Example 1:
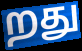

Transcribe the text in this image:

றது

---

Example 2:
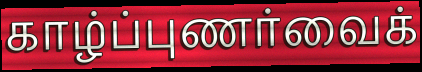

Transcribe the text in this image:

காழ்ப்புணர்வைக்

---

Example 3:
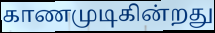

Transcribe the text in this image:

காணமுடிகின்றது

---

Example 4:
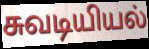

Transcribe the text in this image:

சுவடியியல்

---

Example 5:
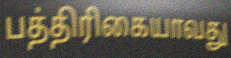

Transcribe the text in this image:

பத்திரிகையாவது